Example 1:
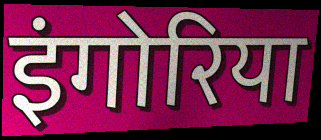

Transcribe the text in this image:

इंगोरिया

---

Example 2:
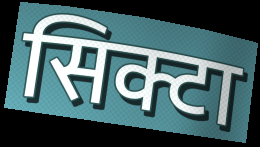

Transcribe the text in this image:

सिक्टा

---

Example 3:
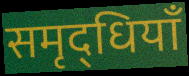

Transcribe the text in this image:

समृद्धियाँ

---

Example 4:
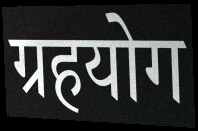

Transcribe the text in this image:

ग्रहयोग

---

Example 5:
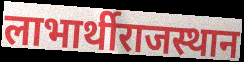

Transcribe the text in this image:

लाभार्थीराजस्थान